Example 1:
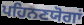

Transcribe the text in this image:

ਪਹਿਨਣਯੋਗਾਂ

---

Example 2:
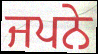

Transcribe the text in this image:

ਜਪਨੇ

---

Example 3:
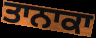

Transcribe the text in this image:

ਤਾਨਾਕਾ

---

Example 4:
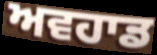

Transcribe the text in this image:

ਅਵਹਾਡ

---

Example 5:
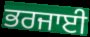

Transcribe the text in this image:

ਭਰਜਾਈ